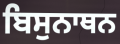
ਬਿਸੁਨਾਥਨ